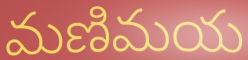
మణిమయ